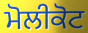
ਮੋਲੀਕੋਟ